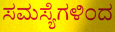
ಸಮಸ್ಯೆಗಳಿಂದ